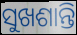
ସୁଖଶାନ୍ତି